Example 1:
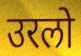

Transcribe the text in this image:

उरलो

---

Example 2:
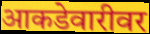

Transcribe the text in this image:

आकडेवारीवर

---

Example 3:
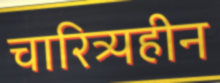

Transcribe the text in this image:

चारित्र्यहीन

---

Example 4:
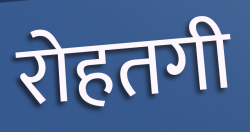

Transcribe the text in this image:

रोहतगी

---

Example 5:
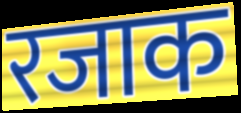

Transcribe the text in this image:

रजाक